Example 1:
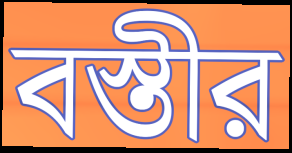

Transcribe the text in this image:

বস্তীর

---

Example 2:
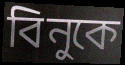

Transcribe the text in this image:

বিনুকে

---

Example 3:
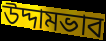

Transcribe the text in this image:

উদ্দামভাব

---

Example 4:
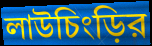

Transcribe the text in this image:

লাউচিংড়ির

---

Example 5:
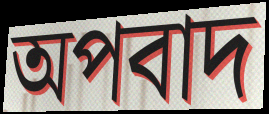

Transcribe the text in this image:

অপবাদ